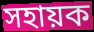
সহায়ক